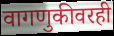
वागणुकीवरही